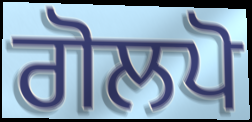
ਗੋਲਪੋ